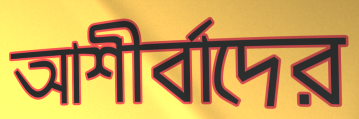
আশীর্বাদের